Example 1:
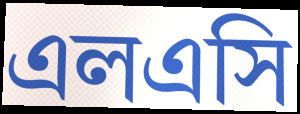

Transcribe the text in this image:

এলএসি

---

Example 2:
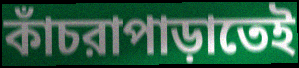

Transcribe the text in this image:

কাঁচরাপাড়াতেই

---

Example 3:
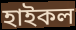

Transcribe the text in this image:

হাইকল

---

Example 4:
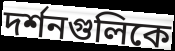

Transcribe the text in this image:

দর্শনগুলিকে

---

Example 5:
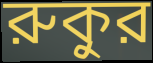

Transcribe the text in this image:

রুকুর